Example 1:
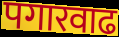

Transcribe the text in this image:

पगारवाढ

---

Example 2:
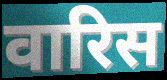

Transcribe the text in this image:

वारिस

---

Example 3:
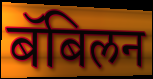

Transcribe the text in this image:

बॅबिलन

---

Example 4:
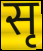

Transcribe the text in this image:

सृ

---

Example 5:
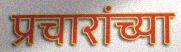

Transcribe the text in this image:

प्रचारांच्या